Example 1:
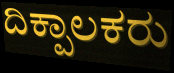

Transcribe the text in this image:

ದಿಕ್ಪಾಲಕರು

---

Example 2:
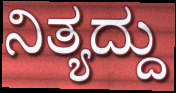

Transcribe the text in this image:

ನಿತ್ಯದ್ದು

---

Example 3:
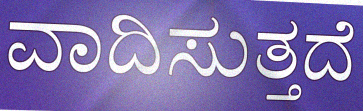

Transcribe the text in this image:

ವಾದಿಸುತ್ತದೆ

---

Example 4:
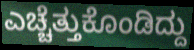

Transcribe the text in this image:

ಎಚ್ಚೆತ್ತುಕೊಂಡಿದ್ದು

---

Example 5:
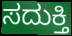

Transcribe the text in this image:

ಸದುಕ್ತಿ